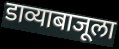
डाव्याबाजूला